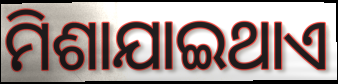
ମିଶାଯାଇଥାଏ